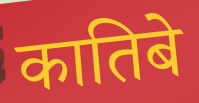
कातिबे